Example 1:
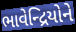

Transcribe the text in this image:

ભાવેન્દ્રિયોને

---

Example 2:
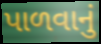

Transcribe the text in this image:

પાળવાનું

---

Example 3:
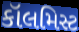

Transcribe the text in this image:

કૉલમિસ્ટ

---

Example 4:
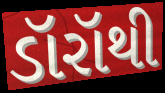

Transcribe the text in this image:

ડૉરૉથી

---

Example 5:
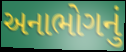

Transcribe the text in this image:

અનાભોગનું